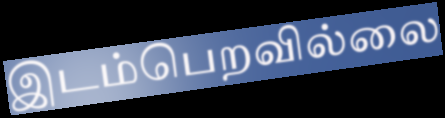
இடம்பெறவில்லை